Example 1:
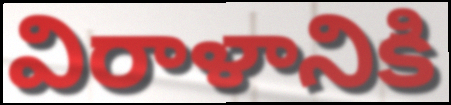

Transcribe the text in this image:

విరాళానికి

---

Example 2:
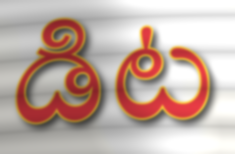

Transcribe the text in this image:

డిట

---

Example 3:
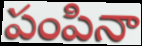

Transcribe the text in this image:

పంపినా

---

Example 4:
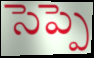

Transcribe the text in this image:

సెప్పె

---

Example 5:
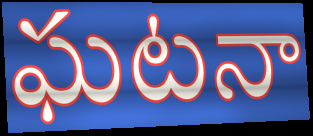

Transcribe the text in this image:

ఘటనా